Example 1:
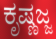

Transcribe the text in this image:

ಕೃಷ್ಣಜ್ಜ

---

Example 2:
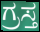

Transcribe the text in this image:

ಗ್ರಸ್ತ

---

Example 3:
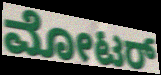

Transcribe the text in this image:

ಮೋಟರ್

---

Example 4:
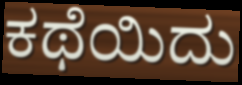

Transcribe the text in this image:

ಕಥೆಯಿದು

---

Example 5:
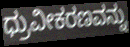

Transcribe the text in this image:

ಧ್ರುವೀಕರಣವನ್ನು